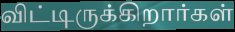
விட்டிருக்கிறார்கள்